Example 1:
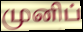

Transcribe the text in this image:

முனிப்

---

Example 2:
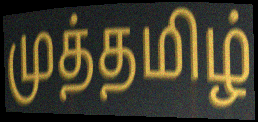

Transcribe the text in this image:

முத்தமிழ்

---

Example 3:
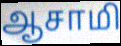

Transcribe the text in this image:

ஆசாமி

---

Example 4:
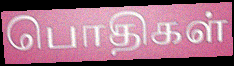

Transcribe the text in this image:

பொதிகள்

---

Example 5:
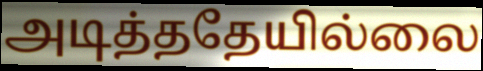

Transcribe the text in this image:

அடித்ததேயில்லை